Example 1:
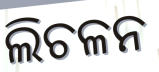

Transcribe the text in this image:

ଲିଚଳନ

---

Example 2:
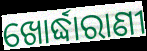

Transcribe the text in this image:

ଖୋର୍ଦ୍ଧାରାଣୀ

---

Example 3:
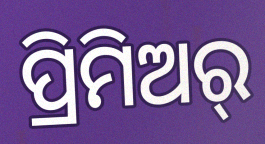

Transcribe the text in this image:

ପ୍ରିମିଅର୍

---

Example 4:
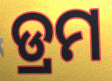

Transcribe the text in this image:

ଡ୍ରମ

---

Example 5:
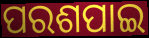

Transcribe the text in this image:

ପରଶପାଇ